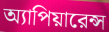
অ্যাপিয়ারেন্স